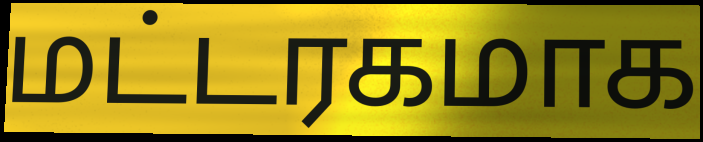
மட்டரகமாக